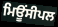
ਮਿਊਂਸੀਪਲ